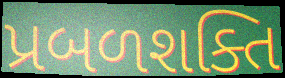
પ્રબળશક્તિ